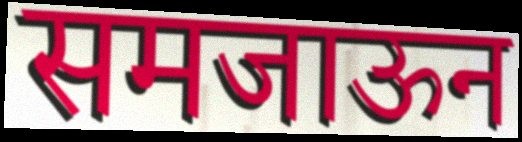
समजाऊन